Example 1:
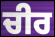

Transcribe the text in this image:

ਚੀਰ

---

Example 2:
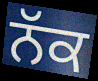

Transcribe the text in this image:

ਨੱਕ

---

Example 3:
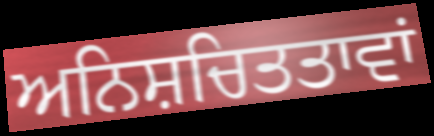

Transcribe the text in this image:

ਅਨਿਸ਼ਚਿਤਤਾਵਾਂ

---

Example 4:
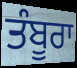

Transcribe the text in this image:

ਤੰਬੂਰਾ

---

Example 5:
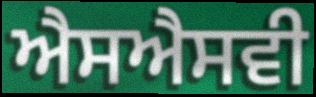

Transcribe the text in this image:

ਐਸਐਸਵੀ